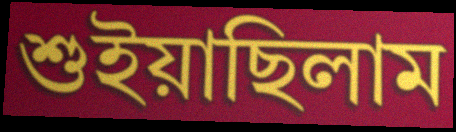
শুইয়াছিলাম